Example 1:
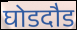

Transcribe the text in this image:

घोडदौड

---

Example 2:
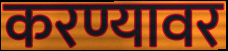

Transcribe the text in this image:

करण्यावर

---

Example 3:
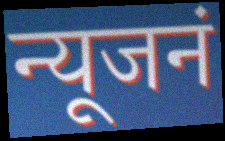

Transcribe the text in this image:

न्यूजनं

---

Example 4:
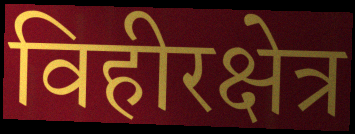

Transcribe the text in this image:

विहीरक्षेत्र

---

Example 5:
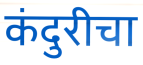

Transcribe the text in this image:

कंदुरीचा